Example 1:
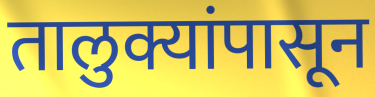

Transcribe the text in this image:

तालुक्यांपासून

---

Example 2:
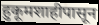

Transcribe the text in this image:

हुकूमशाहीपासून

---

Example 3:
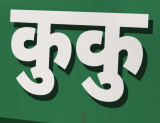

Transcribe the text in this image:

कुकु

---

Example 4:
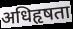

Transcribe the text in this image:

अधिहृषता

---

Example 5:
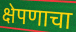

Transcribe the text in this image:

क्षेपणाचा